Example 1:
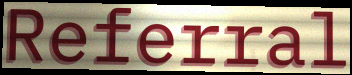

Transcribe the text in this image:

Referral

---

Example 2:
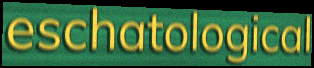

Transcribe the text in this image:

eschatological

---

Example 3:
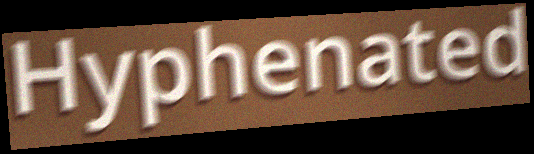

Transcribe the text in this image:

Hyphenated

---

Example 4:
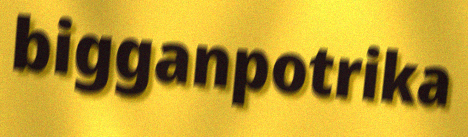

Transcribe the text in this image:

bigganpotrika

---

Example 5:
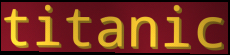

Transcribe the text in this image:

titanic